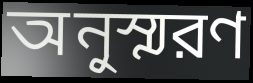
অনুস্মরণ